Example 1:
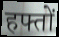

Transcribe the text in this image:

हफ्तों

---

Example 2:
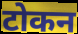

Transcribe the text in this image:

टोकन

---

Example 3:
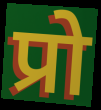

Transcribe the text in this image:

प्रो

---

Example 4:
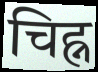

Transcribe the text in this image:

चिह्न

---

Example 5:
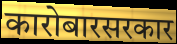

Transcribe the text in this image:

कारोबारसरकार